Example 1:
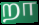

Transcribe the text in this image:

றா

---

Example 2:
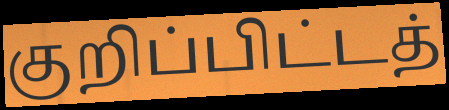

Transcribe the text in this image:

குறிப்பிட்டத்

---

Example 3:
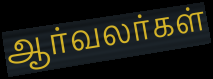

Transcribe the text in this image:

ஆர்வலர்கள்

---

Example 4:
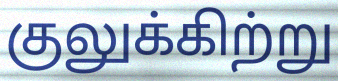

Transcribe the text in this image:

குலுக்கிற்று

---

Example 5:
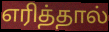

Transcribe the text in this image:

எரித்தால்